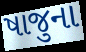
ષાજુના